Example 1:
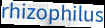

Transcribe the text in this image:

rhizophilus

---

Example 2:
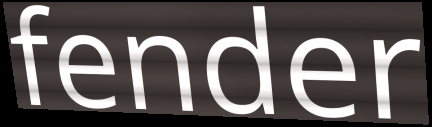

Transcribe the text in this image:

fender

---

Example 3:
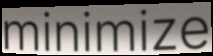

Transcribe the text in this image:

minimize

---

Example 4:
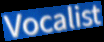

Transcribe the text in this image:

Vocalist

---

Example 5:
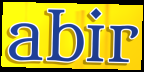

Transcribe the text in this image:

abir